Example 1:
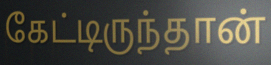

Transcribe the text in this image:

கேட்டிருந்தான்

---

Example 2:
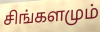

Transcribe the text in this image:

சிங்களமும்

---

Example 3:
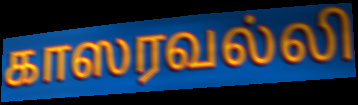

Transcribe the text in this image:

காஸரவல்லி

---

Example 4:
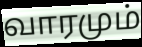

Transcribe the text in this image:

வாரமும்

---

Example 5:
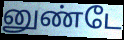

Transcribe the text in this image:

னுண்டே